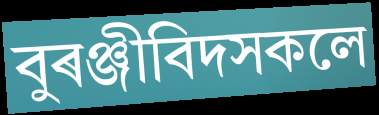
বুৰঞ্জীবিদসকলে